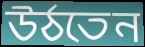
উঠতেন